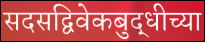
सदसद्विवेकबुद्धीच्या